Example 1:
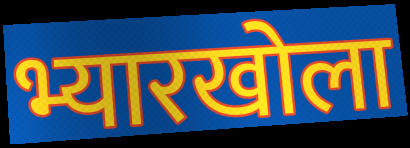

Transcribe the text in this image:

भ्यारखोला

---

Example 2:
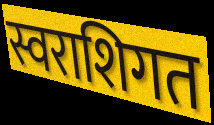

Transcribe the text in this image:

स्वराशिगत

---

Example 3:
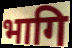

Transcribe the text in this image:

भागि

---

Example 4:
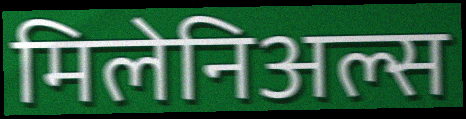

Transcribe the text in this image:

मिलेनिअल्स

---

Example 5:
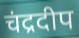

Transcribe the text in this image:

चंद्रदीप